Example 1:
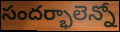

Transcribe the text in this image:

సందర్భాలెన్నో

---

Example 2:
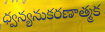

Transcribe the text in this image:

ధ్వన్యనుకరణాత్మక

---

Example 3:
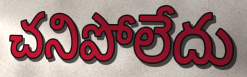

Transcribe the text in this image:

చనిపోలేదు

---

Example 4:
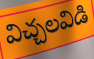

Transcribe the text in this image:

విచ్చలవిడి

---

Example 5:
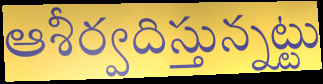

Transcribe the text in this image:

ఆశీర్వదిస్తున్నట్టు